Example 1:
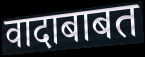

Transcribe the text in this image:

वादाबाबत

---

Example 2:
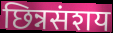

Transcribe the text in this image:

छिन्नसंशय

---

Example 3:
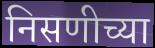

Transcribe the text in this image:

निसणीच्या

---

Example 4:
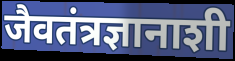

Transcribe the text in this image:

जैवतंत्रज्ञानाशी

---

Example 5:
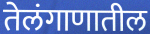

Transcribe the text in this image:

तेलंगाणातील